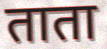
ताता